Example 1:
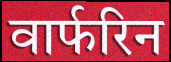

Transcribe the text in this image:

वार्फरिन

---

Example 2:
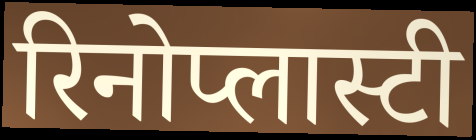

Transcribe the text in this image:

रिनोप्लास्टी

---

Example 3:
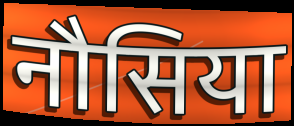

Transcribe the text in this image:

नौसिया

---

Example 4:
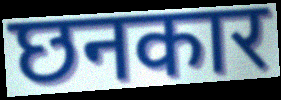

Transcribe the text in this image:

छनकार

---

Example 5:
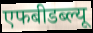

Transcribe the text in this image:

एफबीडब्ल्यू